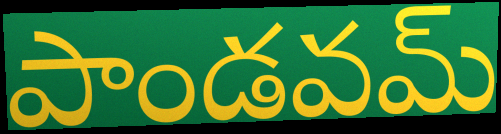
పాండవమ్